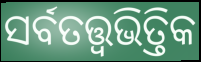
ସର୍ବତତ୍ତ୍ୱଭିତ୍ତିକ